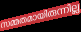
സമ്മതമായിരുന്നില്ല